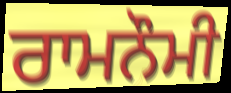
ਰਾਮਨੌਮੀ